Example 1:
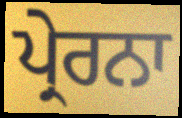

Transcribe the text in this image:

ਪ੍ਰੇਰਨਾ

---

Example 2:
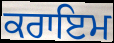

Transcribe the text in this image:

ਕਰਾਇਮ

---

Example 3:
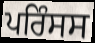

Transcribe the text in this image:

ਪਰਿੰਸਸ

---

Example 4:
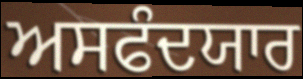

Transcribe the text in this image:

ਅਸਫੰਦਯਾਰ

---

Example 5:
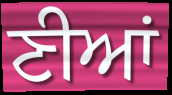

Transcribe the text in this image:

ਣੀਆਂ